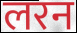
लरन